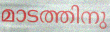
മാടത്തിനു